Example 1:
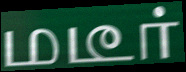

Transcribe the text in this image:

மடீர்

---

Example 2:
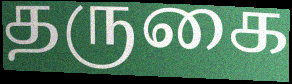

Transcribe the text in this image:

தருகை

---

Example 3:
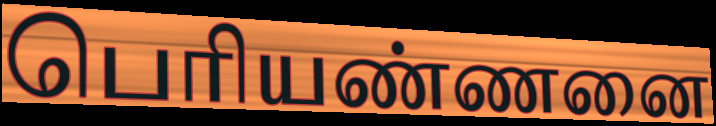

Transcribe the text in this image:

பெரியண்ணனை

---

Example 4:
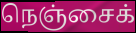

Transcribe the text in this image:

நெஞ்சைக்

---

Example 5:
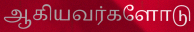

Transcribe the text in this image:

ஆகியவர்களோடு